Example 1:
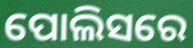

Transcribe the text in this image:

ପୋଲିସରେ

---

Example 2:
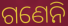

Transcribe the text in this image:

ଗଣେନି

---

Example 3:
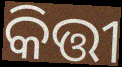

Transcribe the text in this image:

କିତ୍ତୀ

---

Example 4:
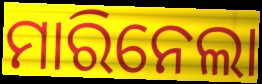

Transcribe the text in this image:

ମାରିନେଲା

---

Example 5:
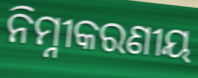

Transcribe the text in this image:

ନିମ୍ନୀକରଣୀୟ